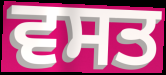
ਵਸਤ